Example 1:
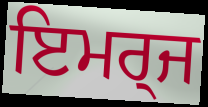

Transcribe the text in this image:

ਇਮਰ੍ਜ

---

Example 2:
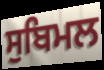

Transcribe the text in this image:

ਸੁਬਿਮਲ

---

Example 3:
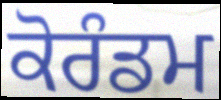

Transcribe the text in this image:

ਕੋਰੰਡਮ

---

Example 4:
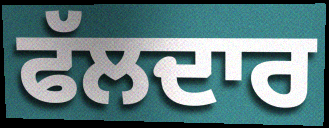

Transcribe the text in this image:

ਫੱਲਦਾਰ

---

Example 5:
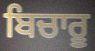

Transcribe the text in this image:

ਬਿਚਾਰੂ